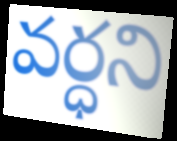
వర్ధని